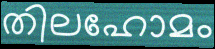
തിലഹോമം